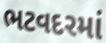
ભટવદરમાં